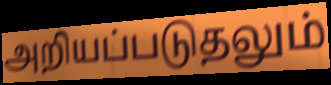
அறியப்படுதலும்